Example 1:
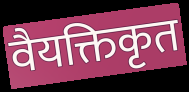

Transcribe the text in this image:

वैयक्तिकृत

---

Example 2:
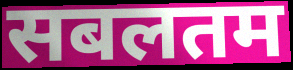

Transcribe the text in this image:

सबलतम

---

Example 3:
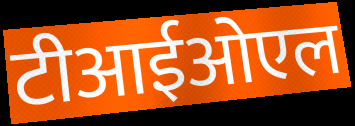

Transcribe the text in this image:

टीआईओएल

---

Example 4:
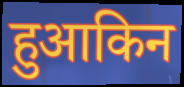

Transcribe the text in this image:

हुआकिन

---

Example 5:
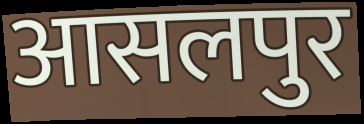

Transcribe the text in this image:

आसलपुर